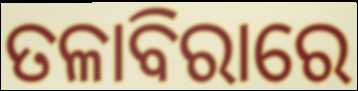
ତଳାବିରାରେ